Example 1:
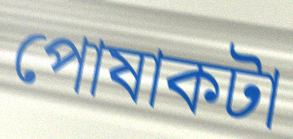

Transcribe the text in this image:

পোষাকটা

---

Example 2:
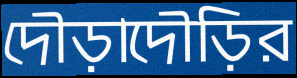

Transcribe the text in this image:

দৌড়াদৌড়ির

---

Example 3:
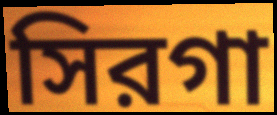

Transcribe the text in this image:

সিরগা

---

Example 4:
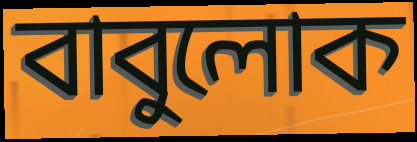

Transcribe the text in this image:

বাবুলোক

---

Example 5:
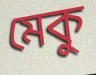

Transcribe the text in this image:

মেকু